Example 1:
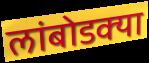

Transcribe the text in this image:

लांबोडक्या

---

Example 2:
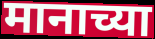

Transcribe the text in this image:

मानाच्या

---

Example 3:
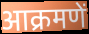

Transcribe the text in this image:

आक्रमणें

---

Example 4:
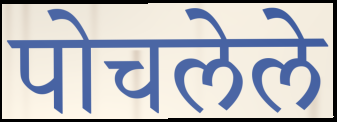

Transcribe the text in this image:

पोचलेले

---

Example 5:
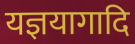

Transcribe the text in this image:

यज्ञयागादि